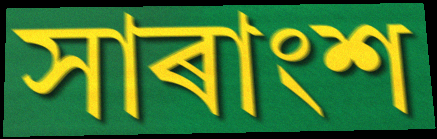
সাৰাংশ